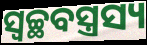
ସ୍ଵଚ୍ଛବସ୍ତ୍ରସ୍ୟ